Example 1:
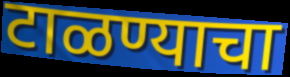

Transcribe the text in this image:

टाळण्याचा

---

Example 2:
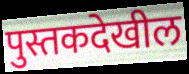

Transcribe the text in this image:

पुस्तकदेखील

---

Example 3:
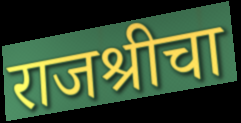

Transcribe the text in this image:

राजश्रीचा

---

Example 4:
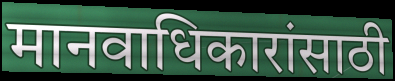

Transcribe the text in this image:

मानवाधिकारांसाठी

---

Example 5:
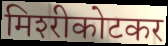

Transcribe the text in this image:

मिश्रीकोटकर